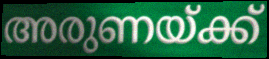
അരുണയ്ക്ക്